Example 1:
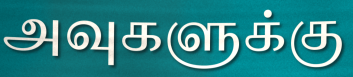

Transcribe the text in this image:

அவுகளுக்கு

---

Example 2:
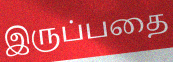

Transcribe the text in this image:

இருப்பதை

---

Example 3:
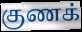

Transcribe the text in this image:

குணக்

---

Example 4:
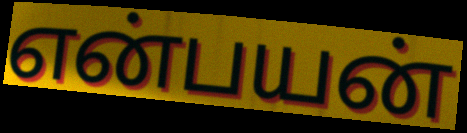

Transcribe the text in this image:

என்பயன்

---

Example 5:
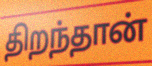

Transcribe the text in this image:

திறந்தான்